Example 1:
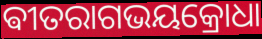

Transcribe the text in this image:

ଵୀତରାଗଭୟକ୍ରୋଧା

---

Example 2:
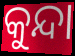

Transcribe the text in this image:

କୁନ୍ଦା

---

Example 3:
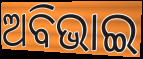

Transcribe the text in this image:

ଅବିଭାଇ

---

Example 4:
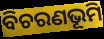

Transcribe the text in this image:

ବିଚରଣଭୂମି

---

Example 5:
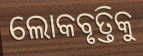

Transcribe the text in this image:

ଲୋକବୃତ୍ତିକୁ